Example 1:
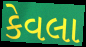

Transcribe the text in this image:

કેવલા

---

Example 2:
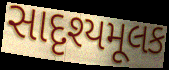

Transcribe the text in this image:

સાદૃશ્યમૂલક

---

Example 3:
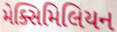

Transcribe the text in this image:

મેક્સિમિલિયન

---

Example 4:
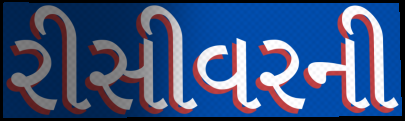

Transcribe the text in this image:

રીસીવરની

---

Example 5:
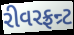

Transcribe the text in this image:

રીવરફ્રન્ર્ટ